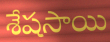
శేషసాయి